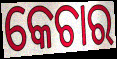
କେଚାର